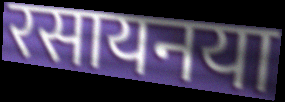
रसायनया